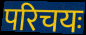
परिचयः